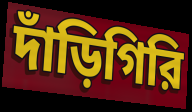
দাঁড়িগিরি